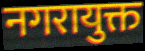
नगरायुक्त